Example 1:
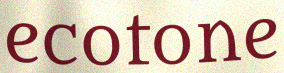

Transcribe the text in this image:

ecotone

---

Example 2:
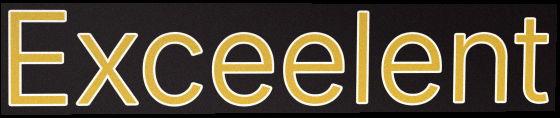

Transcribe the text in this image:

Exceelent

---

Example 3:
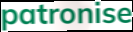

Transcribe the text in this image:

patronise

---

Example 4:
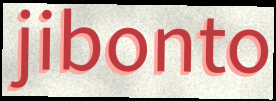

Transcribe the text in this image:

jibonto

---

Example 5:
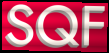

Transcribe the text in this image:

SQF